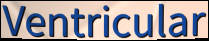
Ventricular